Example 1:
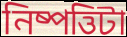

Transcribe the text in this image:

নিষ্পত্তিটা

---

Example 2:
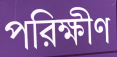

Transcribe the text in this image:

পরিক্ষীণ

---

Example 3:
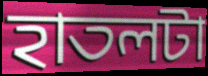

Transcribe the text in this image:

হাতলটা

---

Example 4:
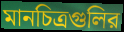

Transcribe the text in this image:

মানচিত্রগুলির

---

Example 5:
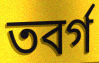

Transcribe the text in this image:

তবর্গ